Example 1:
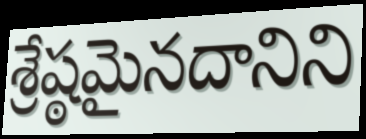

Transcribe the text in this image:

శ్రేష్ఠమైనదానిని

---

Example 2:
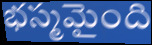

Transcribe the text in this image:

భస్మమైంది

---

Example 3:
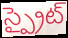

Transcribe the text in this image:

స్ప్రైట్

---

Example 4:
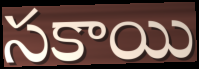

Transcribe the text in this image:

సకాయి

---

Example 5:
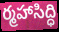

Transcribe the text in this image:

ర్మహాసిద్ధి